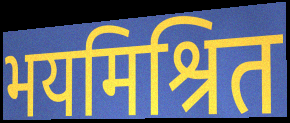
भयमिश्रित